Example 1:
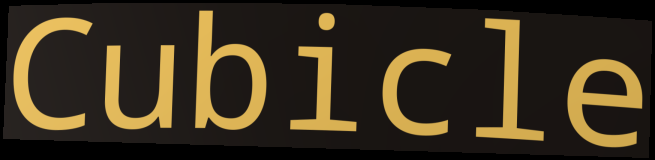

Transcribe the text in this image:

Cubicle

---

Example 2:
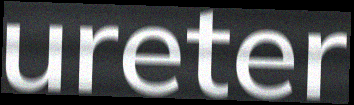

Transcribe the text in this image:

ureter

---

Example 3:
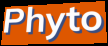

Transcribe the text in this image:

Phyto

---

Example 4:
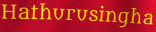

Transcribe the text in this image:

Hathurusingha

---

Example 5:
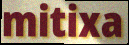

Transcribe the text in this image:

mitixa